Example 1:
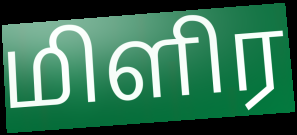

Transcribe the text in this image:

மிளிர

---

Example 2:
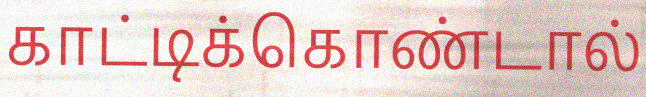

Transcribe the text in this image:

காட்டிக்கொண்டால்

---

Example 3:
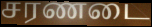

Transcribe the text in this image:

சரணடை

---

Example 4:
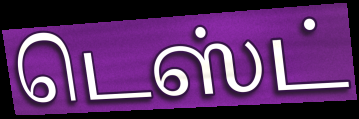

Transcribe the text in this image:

டெஸ்ட்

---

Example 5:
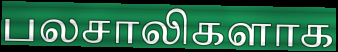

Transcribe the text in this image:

பலசாலிகளாக